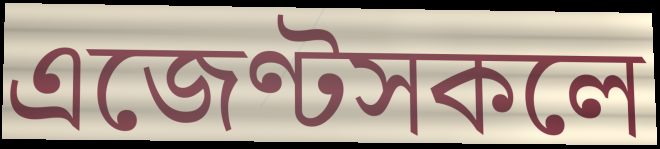
এজেণ্টসকলে